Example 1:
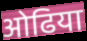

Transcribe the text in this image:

ओढिया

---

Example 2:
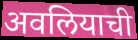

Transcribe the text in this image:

अवलियाची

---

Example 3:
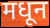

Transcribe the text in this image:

मधून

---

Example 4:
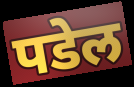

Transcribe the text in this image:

पडेल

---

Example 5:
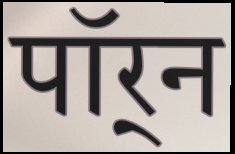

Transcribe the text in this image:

पॉर्न